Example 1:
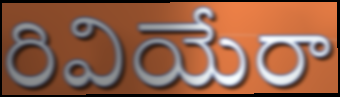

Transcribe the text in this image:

రివియేరా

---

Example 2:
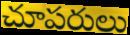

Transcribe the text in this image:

చూపరులు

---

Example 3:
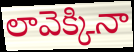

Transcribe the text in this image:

లావెక్కినా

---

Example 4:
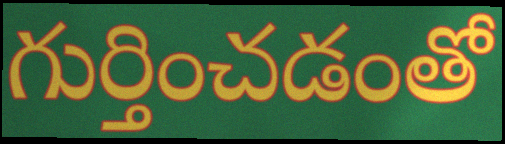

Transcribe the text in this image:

గుర్తించడంతో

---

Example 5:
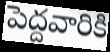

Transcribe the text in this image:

పెద్దవారికి